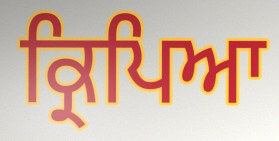
ਕ੍ਰਿਪਿਆ